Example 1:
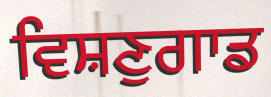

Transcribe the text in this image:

ਵਿਸ਼ਣੁਗਾਡ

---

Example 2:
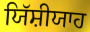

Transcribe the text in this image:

ਯਿੱਸ਼ੀਯਾਹ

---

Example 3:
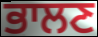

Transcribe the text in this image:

ਭਾਲਣ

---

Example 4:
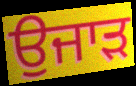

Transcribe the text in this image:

ਉੁਜਾੜ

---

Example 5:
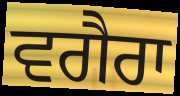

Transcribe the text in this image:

ਵਗੈਰਾ